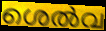
ശെൽവ